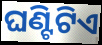
ଘଣ୍ଟିଟିଏ